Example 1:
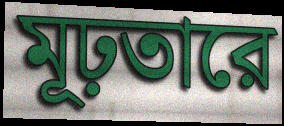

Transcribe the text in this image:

মূঢ়তারে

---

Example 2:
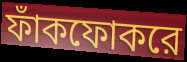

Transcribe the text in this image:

ফাঁকফোকরে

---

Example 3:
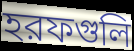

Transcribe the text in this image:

হরফগুলি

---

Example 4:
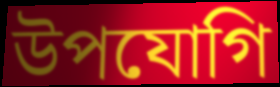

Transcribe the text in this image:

উপযোগি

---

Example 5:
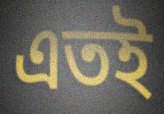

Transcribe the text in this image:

এতই